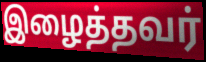
இழைத்தவர்